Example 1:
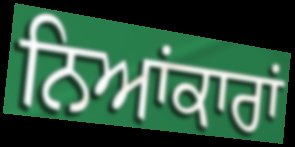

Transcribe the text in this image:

ਨਿਆਂਕਾਰਾਂ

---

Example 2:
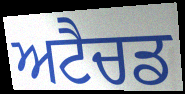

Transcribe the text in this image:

ਅਟੈਚਡ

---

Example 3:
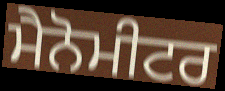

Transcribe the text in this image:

ਮੈਨੋਮੀਟਰ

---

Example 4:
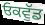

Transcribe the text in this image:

ਓਕਵੁੱਡ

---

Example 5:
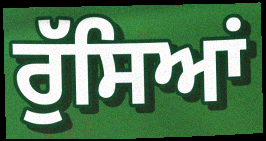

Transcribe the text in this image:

ਰੁੱਸਿਆਂ